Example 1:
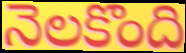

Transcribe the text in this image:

నెలకొంది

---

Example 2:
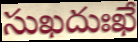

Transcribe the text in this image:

సుఖదుఃఖే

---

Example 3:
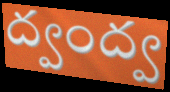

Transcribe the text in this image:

ద్వంద్వ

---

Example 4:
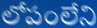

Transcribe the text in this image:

లోపంలేని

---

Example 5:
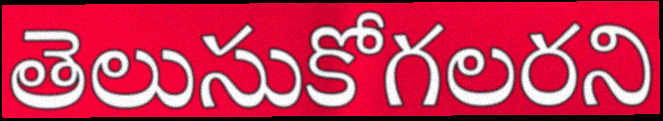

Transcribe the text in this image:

తెలుసుకోగలరని